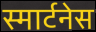
स्मार्टनेस